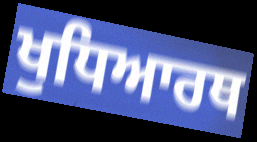
ਖੁਧਿਆਰਥ